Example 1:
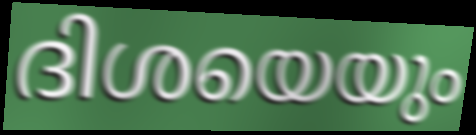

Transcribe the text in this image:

ദിശയെയും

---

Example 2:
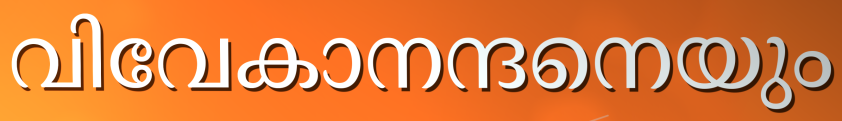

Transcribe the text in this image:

വിവേകാനന്ദനെയും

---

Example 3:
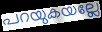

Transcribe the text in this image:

പറയുകയല്ലേ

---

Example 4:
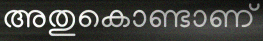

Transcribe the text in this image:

അതുകൊണ്ടാണ്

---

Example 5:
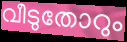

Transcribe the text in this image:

വീടുതോറും